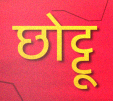
छोट्टू